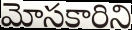
మోసకారిని